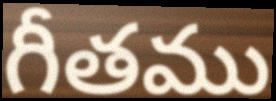
గీతము